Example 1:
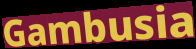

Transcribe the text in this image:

Gambusia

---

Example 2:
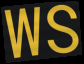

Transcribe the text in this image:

WS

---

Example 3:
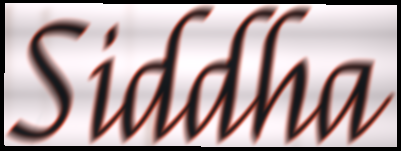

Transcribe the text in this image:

Siddha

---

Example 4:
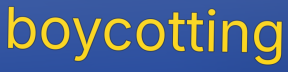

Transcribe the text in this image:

boycotting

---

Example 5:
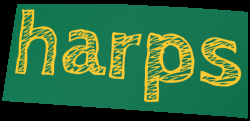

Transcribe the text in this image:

harps